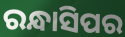
ରନ୍ଧାସିପର